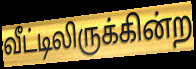
வீட்டிலிருக்கின்ற